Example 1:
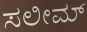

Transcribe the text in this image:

ಸಲೀಮ್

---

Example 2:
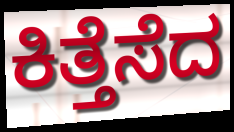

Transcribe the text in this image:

ಕಿತ್ತೆಸೆದ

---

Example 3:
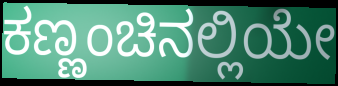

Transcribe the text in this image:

ಕಣ್ಣಂಚಿನಲ್ಲಿಯೇ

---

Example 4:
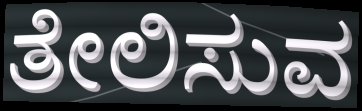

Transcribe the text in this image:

ತೇಲಿಸುವ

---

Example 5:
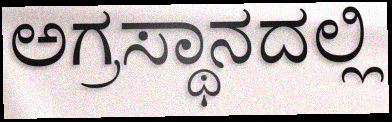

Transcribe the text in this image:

ಅಗ್ರಸ್ಥಾನದಲ್ಲಿ